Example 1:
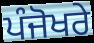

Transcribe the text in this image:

ਪੰਜੋਖਰੇ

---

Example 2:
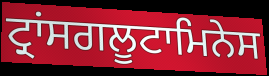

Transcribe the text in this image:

ਟ੍ਰਾਂਸਗਲੂਟਾਮਿਨੇਸ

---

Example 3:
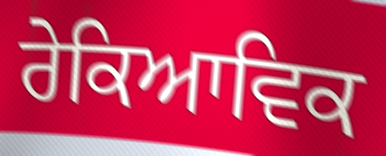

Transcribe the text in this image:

ਰੇਕਿਆਵਿਕ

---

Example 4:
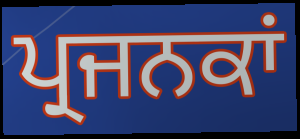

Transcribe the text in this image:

ਪ੍ਰਜਨਕਾਂ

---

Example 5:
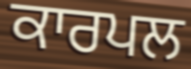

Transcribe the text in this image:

ਕਾਰਪਲ